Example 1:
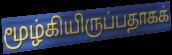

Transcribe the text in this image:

மூழ்கியிருப்பதாகக்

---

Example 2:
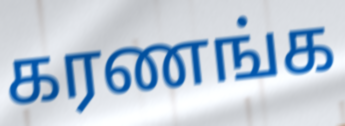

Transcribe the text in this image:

கரணங்க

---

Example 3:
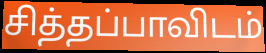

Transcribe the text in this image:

சித்தப்பாவிடம்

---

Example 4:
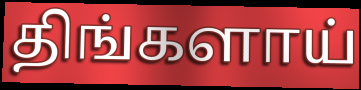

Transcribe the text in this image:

திங்களாய்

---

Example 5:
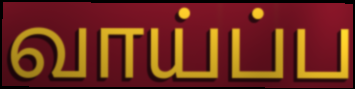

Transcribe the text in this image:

வாய்ப்ப